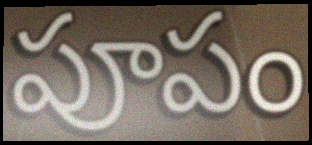
పూపం